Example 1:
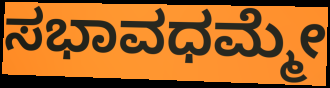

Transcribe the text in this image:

ಸಭಾವಧಮ್ಮೇ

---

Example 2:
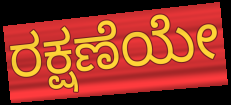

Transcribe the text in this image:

ರಕ್ಷಣೆಯೇ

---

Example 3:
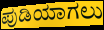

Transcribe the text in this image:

ಪುಡಿಯಾಗಲು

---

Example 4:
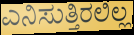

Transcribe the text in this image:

ಎನಿಸುತ್ತಿರಲಿಲ್ಲ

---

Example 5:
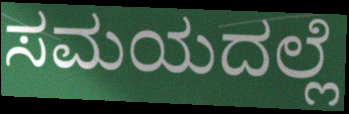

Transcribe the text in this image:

ಸಮಯದಲ್ಲೆ